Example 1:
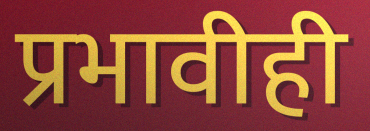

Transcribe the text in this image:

प्रभावीही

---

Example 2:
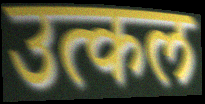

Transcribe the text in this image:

उत्कल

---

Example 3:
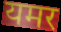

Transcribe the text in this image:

यमर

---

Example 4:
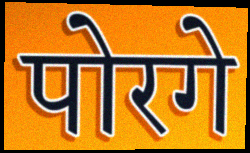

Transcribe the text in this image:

पोरगे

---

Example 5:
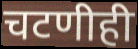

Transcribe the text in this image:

चटणीही